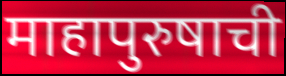
माहापुरुषाची